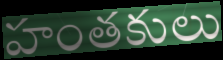
హంతకులు